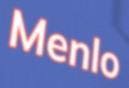
Menlo